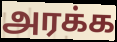
அரக்க